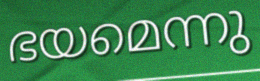
ഭയമെന്നു